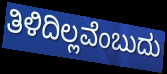
ತಿಳಿದಿಲ್ಲವೆಂಬುದು